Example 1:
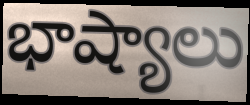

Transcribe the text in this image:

భాష్యాలు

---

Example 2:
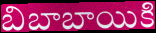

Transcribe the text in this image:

బిబాబాయికి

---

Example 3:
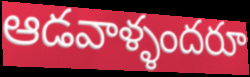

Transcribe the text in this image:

ఆడవాళ్ళందరూ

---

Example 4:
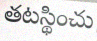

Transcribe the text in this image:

తటస్థించు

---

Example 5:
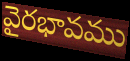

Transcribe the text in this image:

వైరభావము